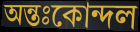
অন্তঃকোন্দল